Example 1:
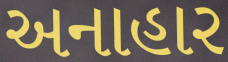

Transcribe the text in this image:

અનાહાર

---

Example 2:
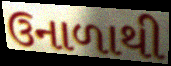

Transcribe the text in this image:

ઉનાળાથી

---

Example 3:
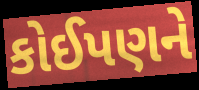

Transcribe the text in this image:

કોઈપણને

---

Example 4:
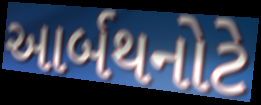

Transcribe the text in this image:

આર્બથનોટે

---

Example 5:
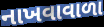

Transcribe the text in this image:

નાખવાવાળા